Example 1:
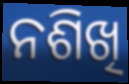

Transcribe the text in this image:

ନଶିଖି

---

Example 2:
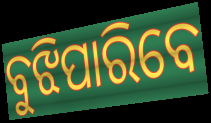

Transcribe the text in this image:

ବୁଝିପାରିବେ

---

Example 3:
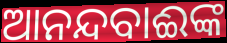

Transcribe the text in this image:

ଆନନ୍ଦବାଈଙ୍କ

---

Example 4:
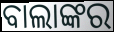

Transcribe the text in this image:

ବାଲାଙ୍କର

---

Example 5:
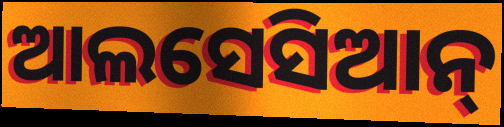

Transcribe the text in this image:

ଆଲସେସିଆନ୍